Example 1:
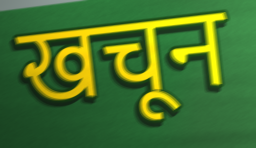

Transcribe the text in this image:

खचून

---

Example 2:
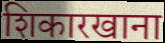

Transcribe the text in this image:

शिकारखाना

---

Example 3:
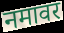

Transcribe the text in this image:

नमावर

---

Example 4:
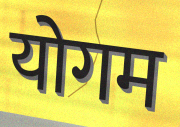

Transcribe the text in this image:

योगम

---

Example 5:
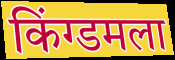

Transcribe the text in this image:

किंग्डमला